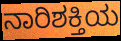
ನಾರಿಶಕ್ತಿಯ